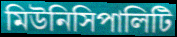
মিউনিসিপালিটি